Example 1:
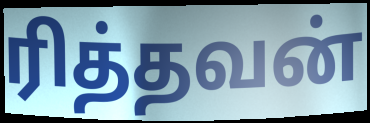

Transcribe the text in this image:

ரித்தவன்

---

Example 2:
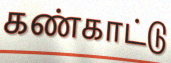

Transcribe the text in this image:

கண்காட்டு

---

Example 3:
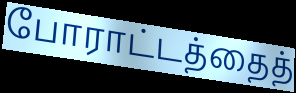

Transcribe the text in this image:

போராட்டத்தைத்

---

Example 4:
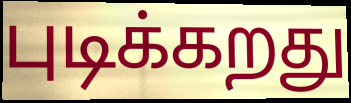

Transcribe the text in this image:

புடிக்கறது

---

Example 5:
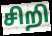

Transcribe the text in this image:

சிறி